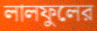
লালফুলের